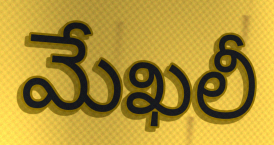
మేఖలీ